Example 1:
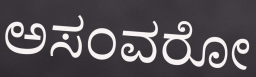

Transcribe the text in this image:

ಅಸಂವರೋ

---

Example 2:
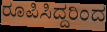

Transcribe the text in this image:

ರೂಪಿಸಿದ್ದರಿಂದ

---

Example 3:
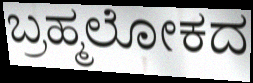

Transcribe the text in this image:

ಬ್ರಹ್ಮಲೋಕದ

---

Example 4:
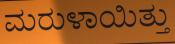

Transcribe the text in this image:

ಮರುಳಾಯಿತ್ತು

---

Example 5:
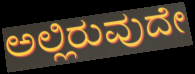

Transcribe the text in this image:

ಅಲ್ಲಿರುವುದೇ